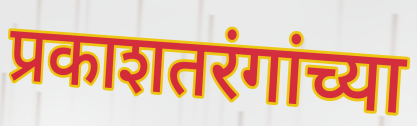
प्रकाशतरंगांच्या